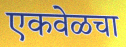
एकवेळचा